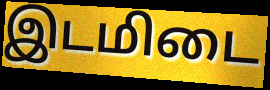
இடமிடை